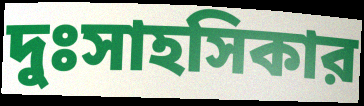
দুঃসাহসিকার